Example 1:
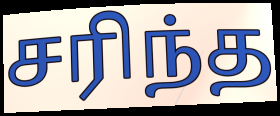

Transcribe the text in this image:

சரிந்த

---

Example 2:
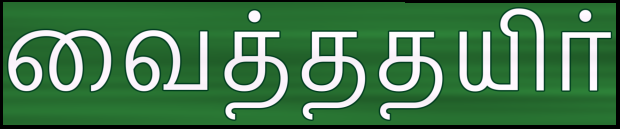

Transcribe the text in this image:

வைத்ததயிர்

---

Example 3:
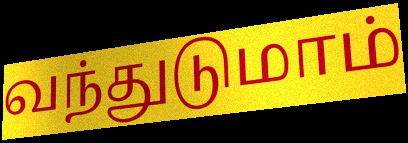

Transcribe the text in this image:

வந்துடுமாம்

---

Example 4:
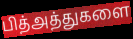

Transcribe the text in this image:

பித்அத்துகளை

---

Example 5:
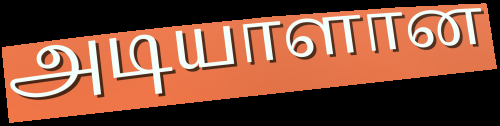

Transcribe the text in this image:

அடியாளான